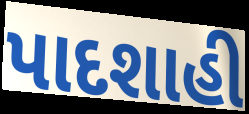
પાદશાહી